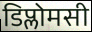
डिप्लोमसी